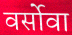
वर्सोवा